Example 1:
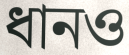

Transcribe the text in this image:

ধানও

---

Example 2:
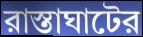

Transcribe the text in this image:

রাস্তাঘাটের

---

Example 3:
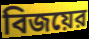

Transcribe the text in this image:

বিজয়ের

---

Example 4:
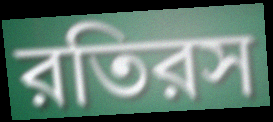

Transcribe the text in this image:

রতিরস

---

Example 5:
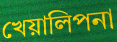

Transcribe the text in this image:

খেয়ালিপনা